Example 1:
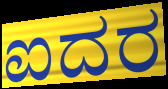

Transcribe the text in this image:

ಐದರ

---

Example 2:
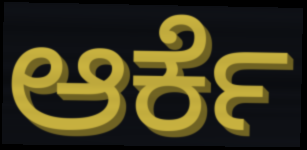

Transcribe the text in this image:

ಆರ್ಕೆ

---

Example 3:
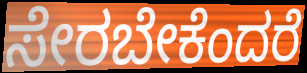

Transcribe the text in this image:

ಸೇರಬೇಕೆಂದರೆ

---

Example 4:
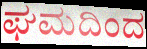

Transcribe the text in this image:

ಘಮದಿಂದ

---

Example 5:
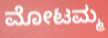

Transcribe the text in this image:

ಮೋಟಮ್ಮ